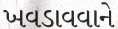
ખવડાવવાને